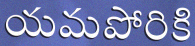
యమపోరికి